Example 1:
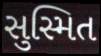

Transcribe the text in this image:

સુસ્મિત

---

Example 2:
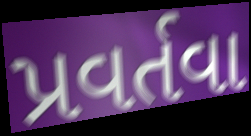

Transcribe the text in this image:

પ્રવર્તવા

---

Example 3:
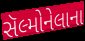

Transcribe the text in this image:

સૅલ્મોનેલાના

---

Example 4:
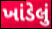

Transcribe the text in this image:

ખાંડેલું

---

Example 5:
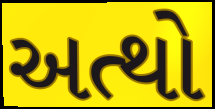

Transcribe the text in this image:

અત્થો